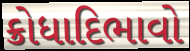
ક્રોધાદિભાવો